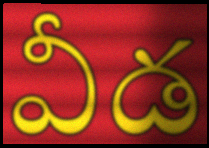
వీడ